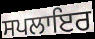
ਸਪਲਾਇਰ